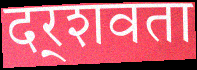
दर्शवता